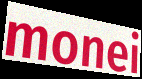
monei